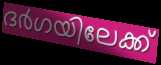
ദർഗയിലേക്ക്